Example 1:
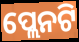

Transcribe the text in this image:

ପ୍ଲେନଟି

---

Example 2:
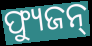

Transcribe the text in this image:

ଫ୍ୟୁଜନ୍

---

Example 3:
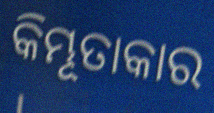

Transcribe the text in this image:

କିମ୍ଭୂତାକାର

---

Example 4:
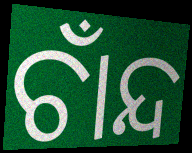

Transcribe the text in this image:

ଚାଁନ୍ଦ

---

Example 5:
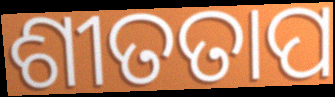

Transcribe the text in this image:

ଶୀତତାପ